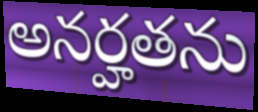
అనర్హతను